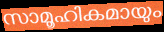
സാമൂഹികമായും